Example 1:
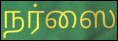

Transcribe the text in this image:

நர்ஸை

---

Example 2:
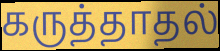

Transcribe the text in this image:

கருத்தாதல்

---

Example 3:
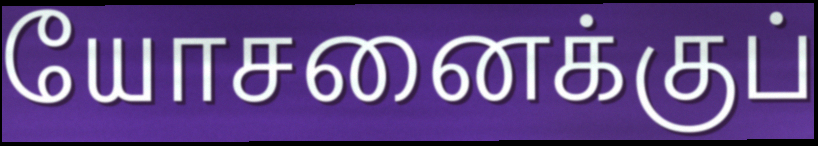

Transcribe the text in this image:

யோசனைக்குப்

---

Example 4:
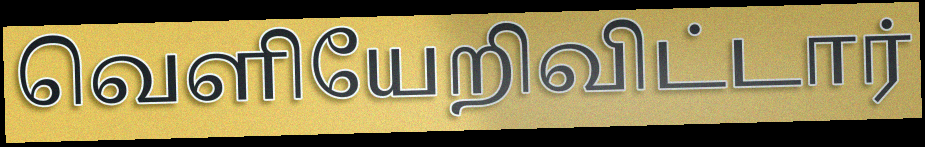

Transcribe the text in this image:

வெளியேறிவிட்டார்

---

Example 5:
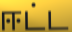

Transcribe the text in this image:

ஈட்ட